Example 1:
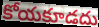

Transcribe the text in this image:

కోయకూడదు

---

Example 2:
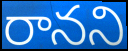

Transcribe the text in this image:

రానని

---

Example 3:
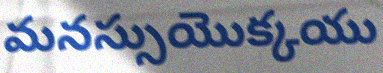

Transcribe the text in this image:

మనస్సుయొక్కయు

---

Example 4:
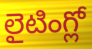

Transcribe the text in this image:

లైటింగ్లో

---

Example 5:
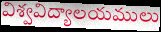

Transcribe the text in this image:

విశ్వవిద్యాలయములు